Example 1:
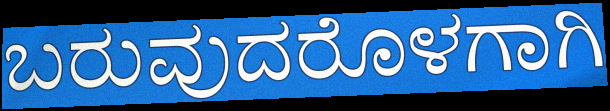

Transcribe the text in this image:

ಬರುವುದರೊಳಗಾಗಿ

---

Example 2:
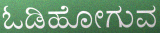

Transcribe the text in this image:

ಓಡಿಹೋಗುವ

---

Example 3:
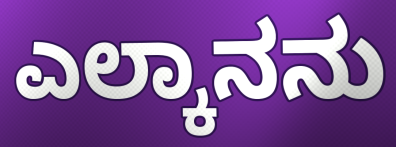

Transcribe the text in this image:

ಎಲ್ಕಾನನು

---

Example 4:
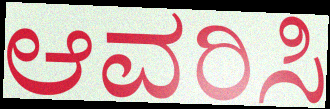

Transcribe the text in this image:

ಆವರಿಸಿ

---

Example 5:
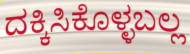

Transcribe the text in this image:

ದಕ್ಕಿಸಿಕೊಳ್ಳಬಲ್ಲ